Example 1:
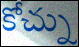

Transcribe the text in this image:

కోచ్ను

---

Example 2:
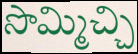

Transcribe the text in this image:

సొమ్మిచ్చి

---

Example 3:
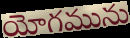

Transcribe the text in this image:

యోగమును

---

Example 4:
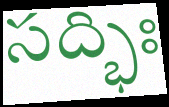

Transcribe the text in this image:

సద్భిః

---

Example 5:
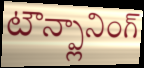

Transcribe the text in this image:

టౌన్ప్లానింగ్